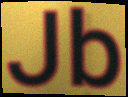
Jb